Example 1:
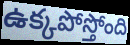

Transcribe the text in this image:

ఉక్కపోస్తోంది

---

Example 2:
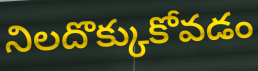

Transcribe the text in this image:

నిలదొక్కుకోవడం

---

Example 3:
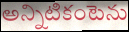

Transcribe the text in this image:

అన్నిటికంటెను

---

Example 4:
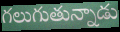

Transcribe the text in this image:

గలుగుతున్నాడు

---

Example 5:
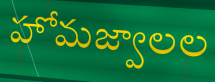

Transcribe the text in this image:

హోమజ్వాలల